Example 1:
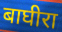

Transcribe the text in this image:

बाघीरा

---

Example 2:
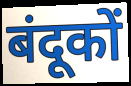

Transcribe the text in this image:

बंदूकों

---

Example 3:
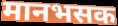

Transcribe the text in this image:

मानभसक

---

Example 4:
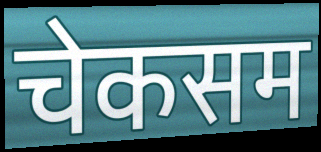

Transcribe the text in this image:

चेकसम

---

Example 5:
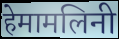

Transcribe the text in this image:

हेमामलिनी